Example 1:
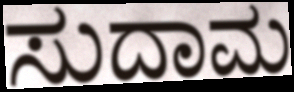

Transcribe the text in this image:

ಸುದಾಮ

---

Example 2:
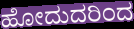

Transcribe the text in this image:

ಹೋದುದರಿಂದ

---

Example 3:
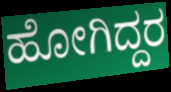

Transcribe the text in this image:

ಹೋಗಿದ್ದರ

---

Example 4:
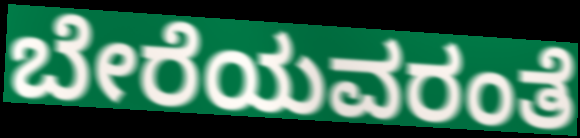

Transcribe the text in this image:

ಬೇರೆಯವರಂತೆ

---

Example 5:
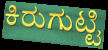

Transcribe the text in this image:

ಕಿರುಗುಟ್ಟಿ